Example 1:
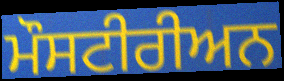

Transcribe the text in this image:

ਮੌਸਟੀਰੀਅਨ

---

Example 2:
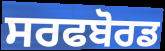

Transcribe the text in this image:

ਸਰਫਬੋਰਡ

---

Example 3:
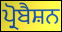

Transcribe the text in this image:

ਪ੍ਰੋਬੈਸ਼ਨ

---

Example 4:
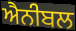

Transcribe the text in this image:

ਐਨੀਬਲ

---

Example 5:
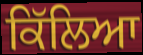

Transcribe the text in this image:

ਕਿੱਲਿਆ